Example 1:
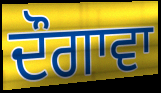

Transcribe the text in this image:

ਦੌਗਾਵਾ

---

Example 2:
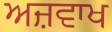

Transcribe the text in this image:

ਅਜ਼ਵਾਖ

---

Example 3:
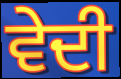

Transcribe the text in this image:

ਵੇਦੀ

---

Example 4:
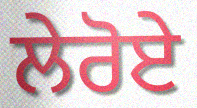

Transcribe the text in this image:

ਲੇਰੋਏ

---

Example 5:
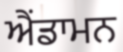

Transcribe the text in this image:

ਐਂਡਾਮਨ